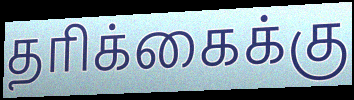
தரிக்கைக்கு